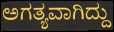
ಅಗತ್ಯವಾಗಿದ್ದು